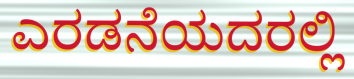
ಎರಡನೆಯದರಲ್ಲಿ